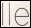
lle